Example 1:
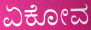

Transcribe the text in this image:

ಏಕೋವ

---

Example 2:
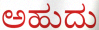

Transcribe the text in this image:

ಅಹುದು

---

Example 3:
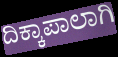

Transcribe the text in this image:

ದಿಕ್ಕಾಪಾಲಾಗಿ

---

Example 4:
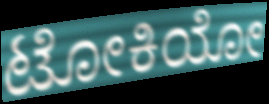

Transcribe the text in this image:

ಟೋಕಿಯೋ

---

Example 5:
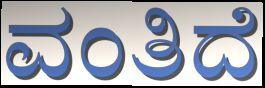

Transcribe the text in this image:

ವಂತಿದೆ